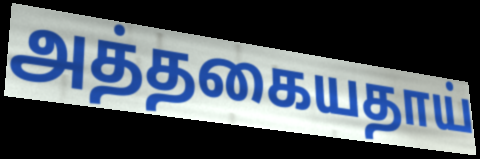
அத்தகையதாய்